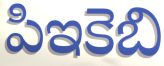
పిఇకెబి